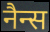
नैन्स